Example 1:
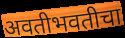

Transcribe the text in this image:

अवतीभवतीचा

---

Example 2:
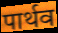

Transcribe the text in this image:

पार्थव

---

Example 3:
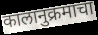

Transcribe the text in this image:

कालानुक्रमाचा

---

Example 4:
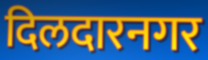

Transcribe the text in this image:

दिलदारनगर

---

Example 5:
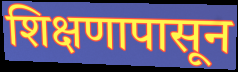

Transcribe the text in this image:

शिक्षणापासून